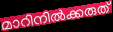
മാറിനിൽക്കരുത്